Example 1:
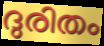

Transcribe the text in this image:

ദുരിതം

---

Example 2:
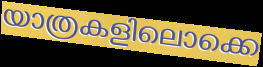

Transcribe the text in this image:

യാത്രകളിലൊക്കെ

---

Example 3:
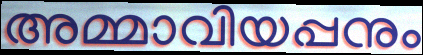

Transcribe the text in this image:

അമ്മാവിയപ്പനും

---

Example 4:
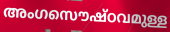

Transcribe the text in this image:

അംഗസൌഷ്ഠവമുള്ള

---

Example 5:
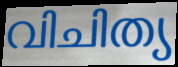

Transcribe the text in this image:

വിചിത്യ